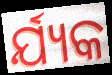
ର୍ଯ୍ୟକ